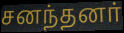
சனந்தனர்